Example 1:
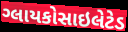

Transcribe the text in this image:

ગ્લાયકોસાઇલેટેડ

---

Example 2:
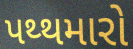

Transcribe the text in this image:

પથ્થમારો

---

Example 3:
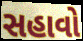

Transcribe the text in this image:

સહાવો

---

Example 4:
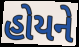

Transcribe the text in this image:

હોયને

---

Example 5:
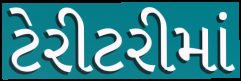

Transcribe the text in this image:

ટેરીટરીમાં